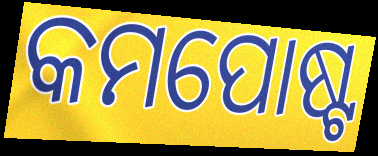
କମପୋଷ୍ଟ